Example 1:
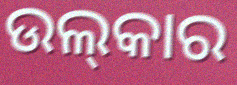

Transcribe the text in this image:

ଉଲ୍‌କାର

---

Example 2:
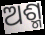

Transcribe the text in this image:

ଅଶ୍ମ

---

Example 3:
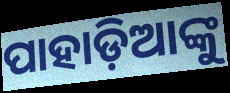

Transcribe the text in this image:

ପାହାଡ଼ିଆଙ୍କୁ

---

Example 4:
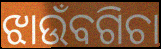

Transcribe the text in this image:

ଝାଉଁବଗିଚା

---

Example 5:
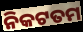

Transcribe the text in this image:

ନିକଟତମ